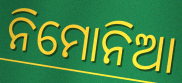
ନିମୋନିଆ